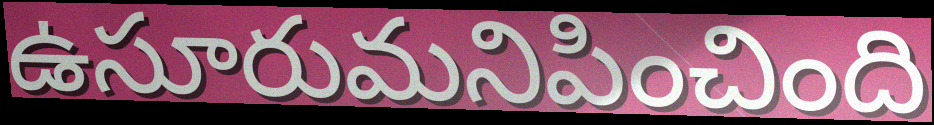
ఉసూరుమనిపించింది